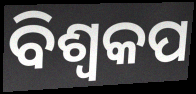
ବିଶ୍ବକପ